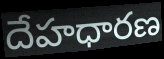
దేహధారణ